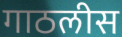
गाठलीस